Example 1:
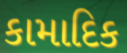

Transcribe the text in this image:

કામાદિક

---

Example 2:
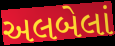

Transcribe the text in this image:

અલબેલાં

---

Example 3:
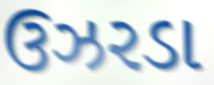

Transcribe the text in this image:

ઉઝરડા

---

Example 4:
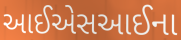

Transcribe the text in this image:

આઈએસઆઈના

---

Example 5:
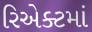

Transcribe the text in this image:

રિએક્ટમાં